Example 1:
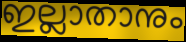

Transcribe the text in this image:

ഇല്ലാതാനും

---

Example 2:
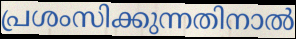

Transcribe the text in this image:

പ്രശംസിക്കുന്നതിനാൽ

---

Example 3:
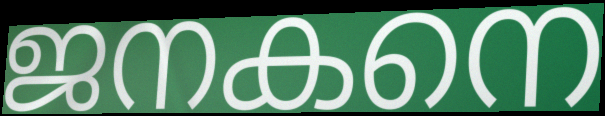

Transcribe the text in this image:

ജനകനെ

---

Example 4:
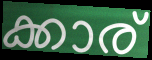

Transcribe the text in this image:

ക്കാര്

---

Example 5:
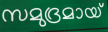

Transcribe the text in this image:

സമുദ്രമായ്